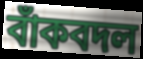
বাঁকবদল